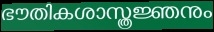
ഭൗതികശാസ്ത്രജ്ഞനും